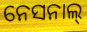
ନେସନାଲ୍